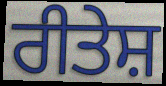
ਰੀਤੇਸ਼